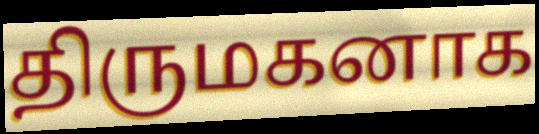
திருமகனாக